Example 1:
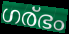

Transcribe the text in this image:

ഗര്ഭം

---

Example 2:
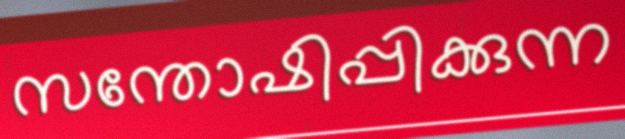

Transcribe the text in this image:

സന്തോഷിപ്പിക്കുന്ന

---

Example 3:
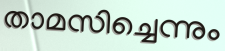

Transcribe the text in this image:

താമസിച്ചെന്നും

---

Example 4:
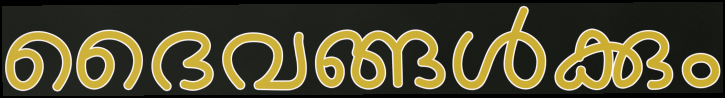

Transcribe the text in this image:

ദൈവങ്ങൾക്കും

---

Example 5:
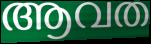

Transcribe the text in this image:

ആവത